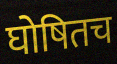
घोषितच